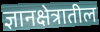
ज्ञानक्षेत्रातील